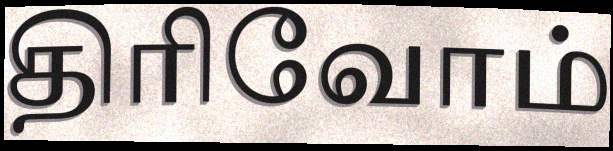
திரிவோம்